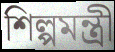
শিল্পমন্ত্রী